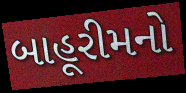
બાહૂરીમનો